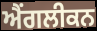
ਐਂਗਲੀਕਨ